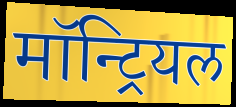
मॉन्ट्रियल